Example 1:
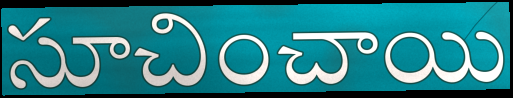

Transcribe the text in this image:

సూచించాయి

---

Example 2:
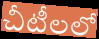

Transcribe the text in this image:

చీటీలలో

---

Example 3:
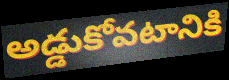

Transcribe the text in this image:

అడ్డుకోవటానికి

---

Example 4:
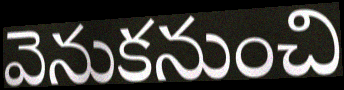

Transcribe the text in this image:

వెనుకనుంచి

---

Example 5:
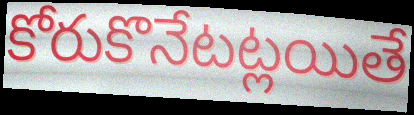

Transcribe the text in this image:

కోరుకొనేటట్లయితే